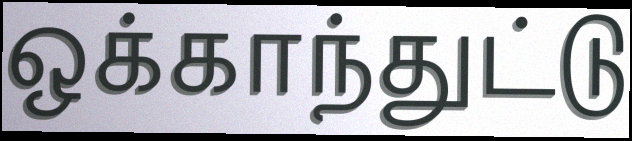
ஒக்காந்துட்டு